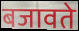
बजावते